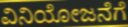
ವಿನಿಯೋಜನೆಗೆ